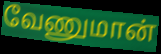
வேணுமான்